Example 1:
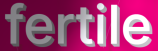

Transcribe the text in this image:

fertile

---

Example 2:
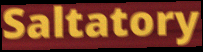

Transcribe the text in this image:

Saltatory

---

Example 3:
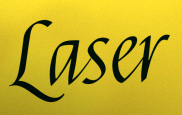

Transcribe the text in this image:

Laser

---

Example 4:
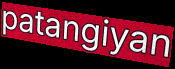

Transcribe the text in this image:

patangiyan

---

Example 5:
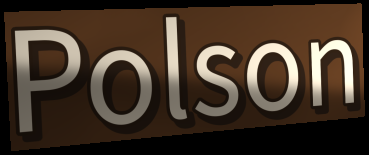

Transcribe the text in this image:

Polson